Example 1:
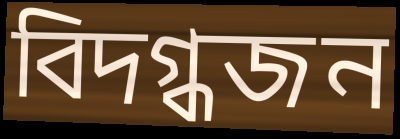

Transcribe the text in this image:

বিদগ্ধজন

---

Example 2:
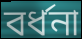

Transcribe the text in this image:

বর্ধনা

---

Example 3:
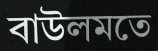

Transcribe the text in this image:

বাউলমতে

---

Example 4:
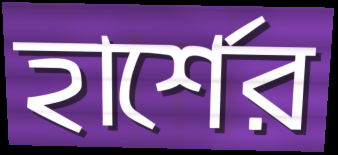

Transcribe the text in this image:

হার্শের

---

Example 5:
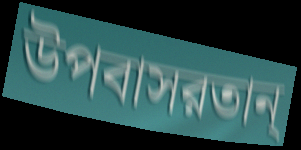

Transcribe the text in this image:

উপবাসরতান্